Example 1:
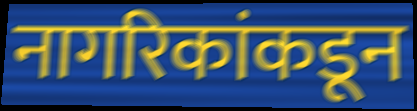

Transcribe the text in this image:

नागरिकांकडून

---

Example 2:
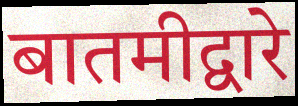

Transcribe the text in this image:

बातमीद्वारे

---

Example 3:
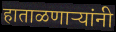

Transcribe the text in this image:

हाताळणाऱ्यांनी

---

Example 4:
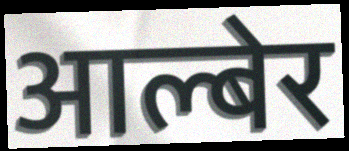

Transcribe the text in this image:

आल्बेर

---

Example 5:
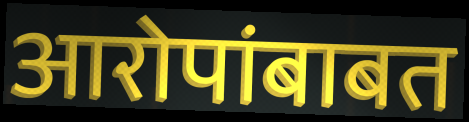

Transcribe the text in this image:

आरोपांबाबत